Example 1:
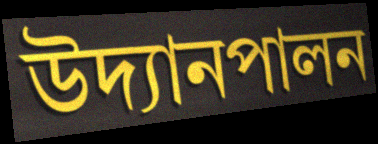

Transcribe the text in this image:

উদ্যানপালন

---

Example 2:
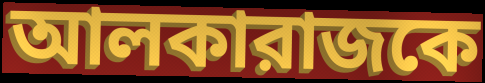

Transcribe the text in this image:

আলকারাজকে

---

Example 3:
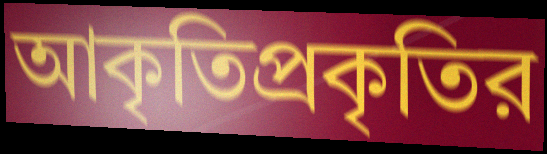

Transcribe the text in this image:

আকৃতিপ্রকৃতির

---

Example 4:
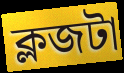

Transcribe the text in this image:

ক্লজটা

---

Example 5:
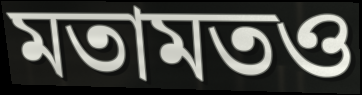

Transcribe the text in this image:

মতামতও